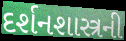
દર્શનશાસ્ત્રની